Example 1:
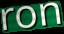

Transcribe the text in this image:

ron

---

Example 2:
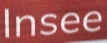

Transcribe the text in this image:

Insee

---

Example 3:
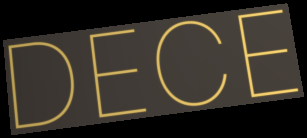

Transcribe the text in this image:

DECE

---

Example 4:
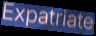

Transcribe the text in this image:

Expatriate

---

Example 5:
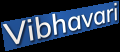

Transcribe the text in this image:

Vibhavari